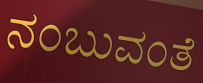
ನಂಬುವಂತೆ